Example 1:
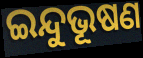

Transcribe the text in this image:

ଇନ୍ଦୁଭୂଷଣ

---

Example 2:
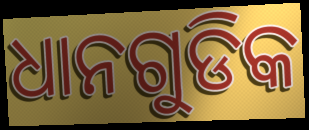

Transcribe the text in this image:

ଧାନଗୁଡିକ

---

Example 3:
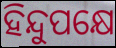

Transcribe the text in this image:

ହିନ୍ଦୁପକ୍ଷେ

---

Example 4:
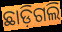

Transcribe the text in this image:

ଛାଡ଼ିଗଲି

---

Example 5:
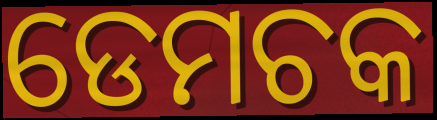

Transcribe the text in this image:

ଡେମଚକ